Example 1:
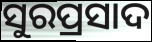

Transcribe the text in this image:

ସୁରପ୍ରସାଦ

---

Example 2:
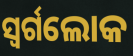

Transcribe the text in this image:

ସ୍ୱର୍ଗଲୋକ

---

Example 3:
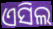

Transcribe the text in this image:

ଏସିଲ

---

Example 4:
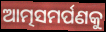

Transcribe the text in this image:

ଆତ୍ମସମର୍ପଣକୁ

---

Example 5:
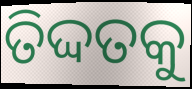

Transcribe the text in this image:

ତିଦ୍ଦତକୁ